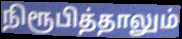
நிரூபித்தாலும்